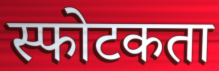
स्फोटकता